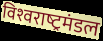
विश्वराष्ट्रमंडल